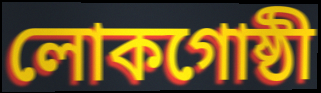
লোকগোষ্ঠী